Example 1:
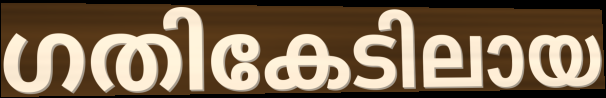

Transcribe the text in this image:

ഗതികേടിലായ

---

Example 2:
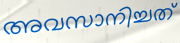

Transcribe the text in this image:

അവസാനിച്ചത്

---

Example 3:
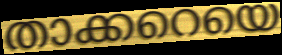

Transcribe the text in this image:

താക്കറെയെ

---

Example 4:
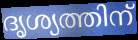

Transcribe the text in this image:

ദൃശ്യത്തിന്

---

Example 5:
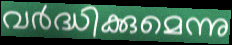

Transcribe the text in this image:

വർദ്ധിക്കുമെന്നു